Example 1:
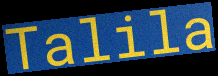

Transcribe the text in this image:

Talila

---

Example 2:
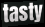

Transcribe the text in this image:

tasty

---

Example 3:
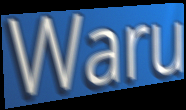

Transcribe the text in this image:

Waru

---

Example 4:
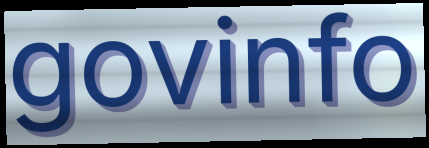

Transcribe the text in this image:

govinfo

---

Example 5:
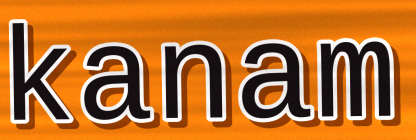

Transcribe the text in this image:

kanam